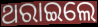
ଥରାଇଲେ